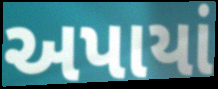
અપાયાં